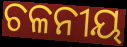
ଚଳନୀୟ